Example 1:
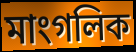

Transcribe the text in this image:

মাংগলিক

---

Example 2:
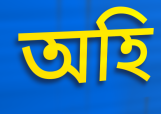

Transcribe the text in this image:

অহি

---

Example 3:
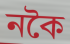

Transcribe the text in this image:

নকৈ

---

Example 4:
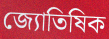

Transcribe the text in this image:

জ্যোতিষিক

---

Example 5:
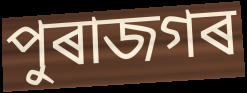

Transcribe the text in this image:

পুৰাজগৰ